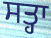
ਸਤ੍ਹਾ